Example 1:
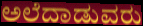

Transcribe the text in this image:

ಅಲೆದಾಡುವರು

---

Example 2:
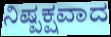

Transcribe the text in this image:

ನಿಷ್ಪಕ್ಷವಾದ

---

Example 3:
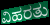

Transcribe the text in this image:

ವಿಹರತು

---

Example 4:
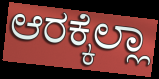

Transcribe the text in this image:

ಆರಕ್ಕೆಲ್ಲಾ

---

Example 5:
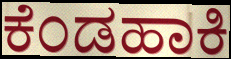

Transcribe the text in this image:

ಕೆಂಡಹಾಕಿ